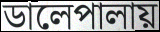
ডালেপালায়